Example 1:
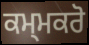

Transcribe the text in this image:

ਕਮ੍ਮਕਰੋ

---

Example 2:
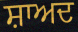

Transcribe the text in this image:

ਸ਼ਾਅਦ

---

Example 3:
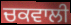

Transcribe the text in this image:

ਚਕਵਾਲੀ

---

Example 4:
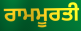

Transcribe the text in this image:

ਰਾਮਮੂਰਤੀ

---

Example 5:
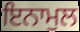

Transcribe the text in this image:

ਇਨਾਮੁਲ